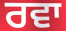
ਰਵਾ